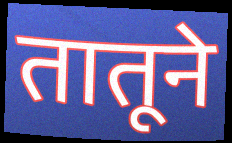
तातूने